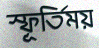
স্ফূর্তিময়